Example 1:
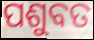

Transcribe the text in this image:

ପଶୁବତ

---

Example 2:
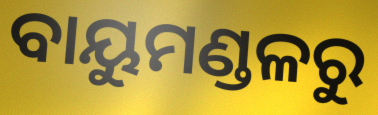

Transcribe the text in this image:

ବାୟୁମଣ୍ଡଳରୁ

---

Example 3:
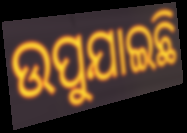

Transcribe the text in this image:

ଉପୁଯାଇଛି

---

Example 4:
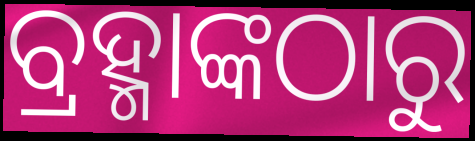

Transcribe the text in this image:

ବ୍ରହ୍ମାଙ୍କଠାରୁ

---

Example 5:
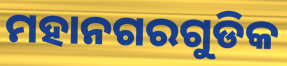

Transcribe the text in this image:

ମହାନଗରଗୁଡିକ